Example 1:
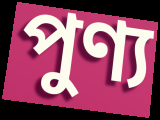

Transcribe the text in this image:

পুণ্য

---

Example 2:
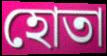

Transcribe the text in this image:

হোতা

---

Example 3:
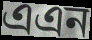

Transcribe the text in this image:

এএন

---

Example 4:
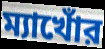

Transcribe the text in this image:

ম্যাখোঁর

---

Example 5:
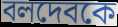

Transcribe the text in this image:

বলদেবকে